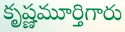
కృష్ణమూర్తిగారు